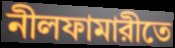
নীলফামারীতে